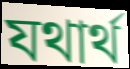
যথাৰ্থ